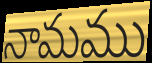
నామము